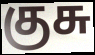
குசு